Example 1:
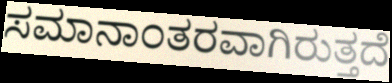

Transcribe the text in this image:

ಸಮಾನಾಂತರವಾಗಿರುತ್ತದೆ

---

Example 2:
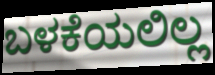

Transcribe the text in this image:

ಬಳಕೆಯಲಿಲ್ಲ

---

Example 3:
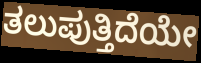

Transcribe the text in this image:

ತಲುಪುತ್ತಿದೆಯೇ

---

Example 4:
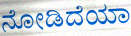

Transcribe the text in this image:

ನೋಡಿದೆಯಾ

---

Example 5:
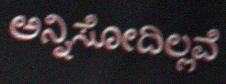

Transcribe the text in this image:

ಅನ್ನಿಸೋದಿಲ್ಲವೆ